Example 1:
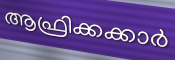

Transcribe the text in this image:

ആഫ്രിക്കക്കാർ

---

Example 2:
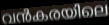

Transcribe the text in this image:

വൻകരയിലെ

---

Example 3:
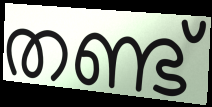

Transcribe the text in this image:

തണ്ട്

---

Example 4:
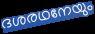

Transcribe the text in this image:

ദശരഥനേയും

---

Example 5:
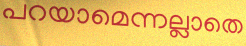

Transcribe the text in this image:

പറയാമെന്നല്ലാതെ